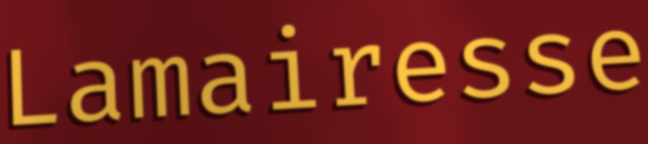
Lamairesse